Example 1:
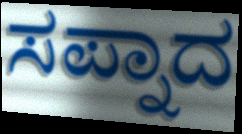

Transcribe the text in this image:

ಸಪ್ನಾದ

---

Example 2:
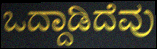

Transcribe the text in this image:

ಒದ್ದಾಡಿದೆವು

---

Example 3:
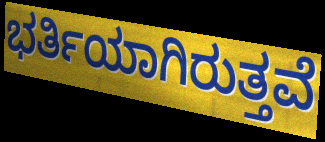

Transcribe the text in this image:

ಭರ್ತಿಯಾಗಿರುತ್ತವೆ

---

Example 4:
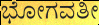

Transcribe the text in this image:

ಭೋಗವತೀ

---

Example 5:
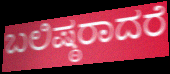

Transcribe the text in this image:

ಬಲಿಷ್ಠರಾದರೆ